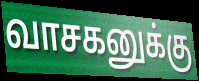
வாசகனுக்கு